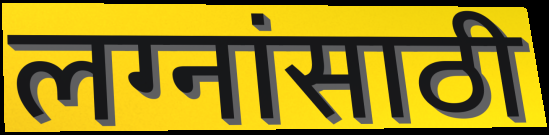
लग्नांसाठी